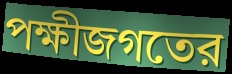
পক্ষীজগতের